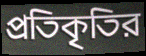
প্রতিকৃতির